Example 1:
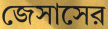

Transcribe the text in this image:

জেসাসের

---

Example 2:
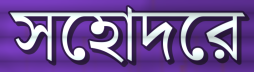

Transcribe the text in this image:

সহোদরে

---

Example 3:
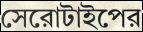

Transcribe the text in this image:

সেরোটাইপের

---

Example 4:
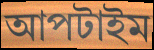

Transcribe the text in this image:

আপটাইম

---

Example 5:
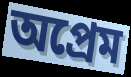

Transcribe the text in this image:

অপ্রেম